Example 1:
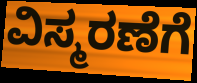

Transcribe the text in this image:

ವಿಸ್ಮರಣೆಗೆ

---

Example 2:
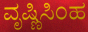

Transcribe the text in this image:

ವೃಷ್ಣಿಸಿಂಹ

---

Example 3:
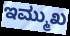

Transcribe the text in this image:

ಇಮ್ಮುಖ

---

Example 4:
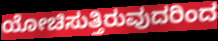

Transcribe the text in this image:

ಯೋಚಿಸುತ್ತಿರುವುದರಿಂದ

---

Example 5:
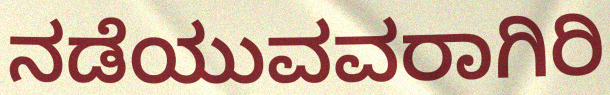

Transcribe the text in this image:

ನಡೆಯುವವರಾಗಿರಿ